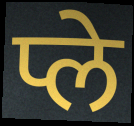
प्ले